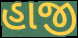
હાજી